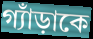
গ্যাঁড়াকে